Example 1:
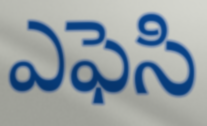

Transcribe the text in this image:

ఎఫెసి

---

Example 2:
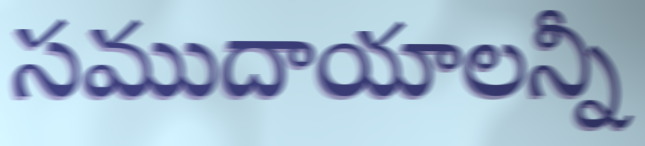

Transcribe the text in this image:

సముదాయాలన్నీ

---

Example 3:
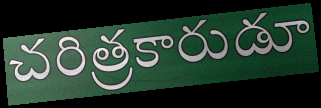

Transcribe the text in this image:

చరిత్రకారుడూ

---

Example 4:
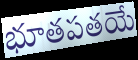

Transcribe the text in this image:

భూతపతయే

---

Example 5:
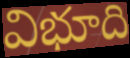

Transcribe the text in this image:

విభూది